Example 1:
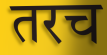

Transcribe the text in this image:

तरच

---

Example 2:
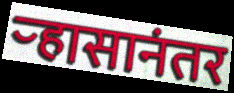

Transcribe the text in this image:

ऱ्हासानंतर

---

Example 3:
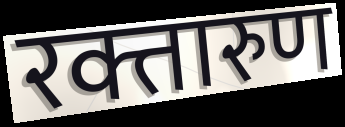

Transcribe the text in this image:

रक्तारुण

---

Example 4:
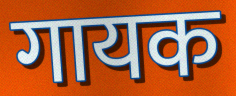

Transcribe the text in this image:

गायक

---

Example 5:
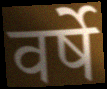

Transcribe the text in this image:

वर्षे